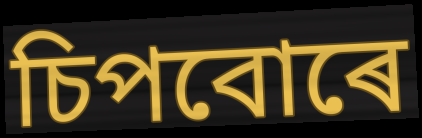
চিপবোৰে